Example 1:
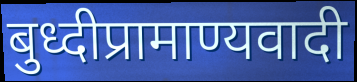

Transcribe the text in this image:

बुध्दीप्रामाण्यवादी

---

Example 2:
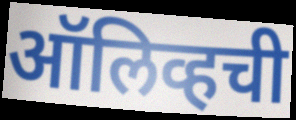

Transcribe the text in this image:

ऑलिव्हची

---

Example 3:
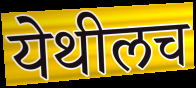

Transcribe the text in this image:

येथीलच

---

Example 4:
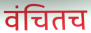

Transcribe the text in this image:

वंचितच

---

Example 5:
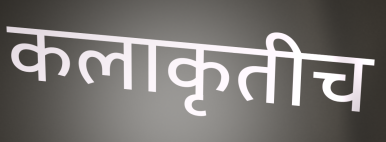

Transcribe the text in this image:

कलाकृतीच